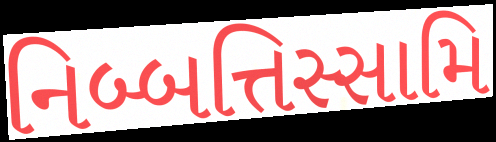
નિબ્બત્તિસ્સામિ